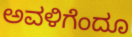
ಅವಳಿಗೆಂದೂ